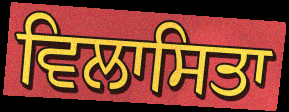
ਵਿਲਾਸਿਤਾ